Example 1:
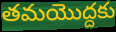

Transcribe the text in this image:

తమయొద్దకు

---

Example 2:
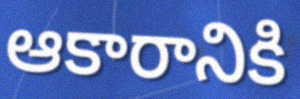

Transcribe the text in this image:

ఆకారానికి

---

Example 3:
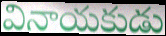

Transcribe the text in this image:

వినాయకుడు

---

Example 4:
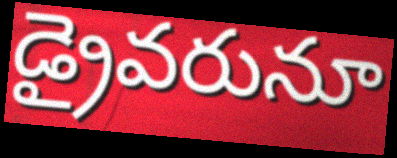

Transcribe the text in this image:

డ్రైవరునూ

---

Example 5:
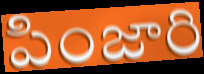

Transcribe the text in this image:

పింజారి